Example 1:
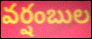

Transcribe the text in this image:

వర్షంబుల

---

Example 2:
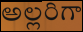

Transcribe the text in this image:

అల్లరిగా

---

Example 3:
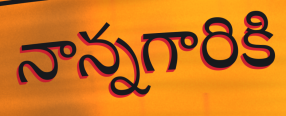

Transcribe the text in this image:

నాన్నగారికి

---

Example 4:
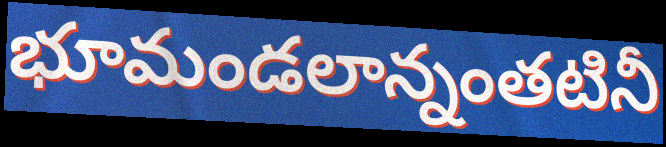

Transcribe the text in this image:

భూమండలాన్నంతటినీ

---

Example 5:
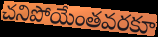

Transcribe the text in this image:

చనిపోయేంతవరకూ